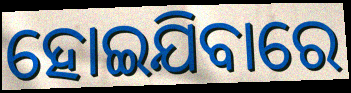
ହୋଇଯିବାରେ